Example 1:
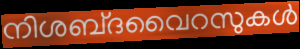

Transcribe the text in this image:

നിശബ്‌ദവൈറസുകൾ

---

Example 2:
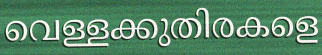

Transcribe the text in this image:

വെള്ളക്കുതിരകളെ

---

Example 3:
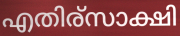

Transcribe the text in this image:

എതിര്സാക്ഷി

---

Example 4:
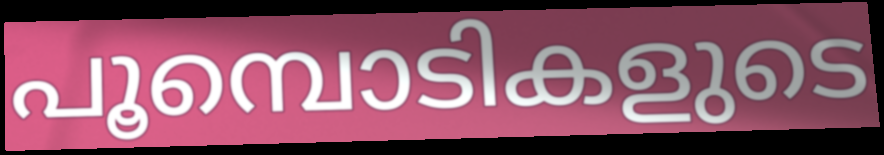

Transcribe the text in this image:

പൂമ്പൊടികളുടെ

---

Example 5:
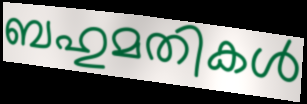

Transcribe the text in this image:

ബഹുമതികൾ